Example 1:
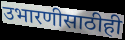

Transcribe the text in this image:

उभारणीसाठीही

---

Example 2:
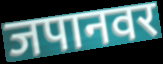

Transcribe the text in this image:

जपानवर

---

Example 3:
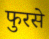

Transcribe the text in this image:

फुरसे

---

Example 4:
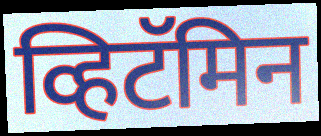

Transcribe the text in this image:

व्हिटॅमिन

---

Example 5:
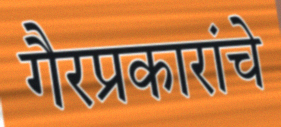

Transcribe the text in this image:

गैरप्रकारांचे